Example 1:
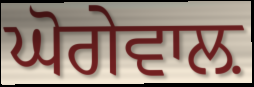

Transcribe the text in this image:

ਘੋਗੇਵਾਲ਼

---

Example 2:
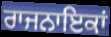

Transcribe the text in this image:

ਰਾਜਨਾਇਕਾਂ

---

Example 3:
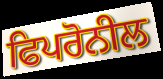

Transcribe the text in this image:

ਫਿਪਰੋਨੀਲ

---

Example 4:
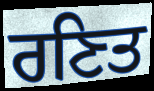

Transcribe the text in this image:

ਰਣਿਤ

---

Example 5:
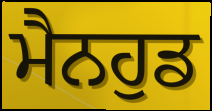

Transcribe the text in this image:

ਮੈਨਹੁਡ